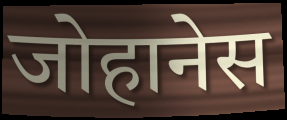
जोहानेस